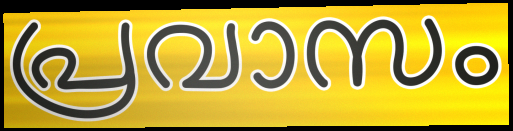
പ്രവാസം